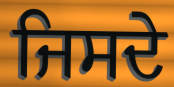
ਜਿਸਦੇ